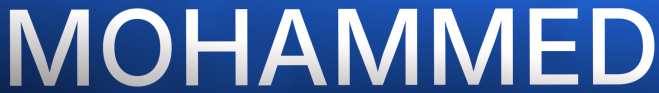
MOHAMMED